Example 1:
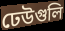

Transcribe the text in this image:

ঢেউগুলি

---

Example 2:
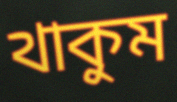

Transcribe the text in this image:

থাকুম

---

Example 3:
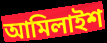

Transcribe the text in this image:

আমিলাইশ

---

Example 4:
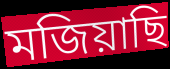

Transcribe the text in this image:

মজিয়াছি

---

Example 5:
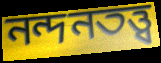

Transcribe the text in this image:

নন্দনতত্ত্ব